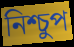
নিশ্চুপ